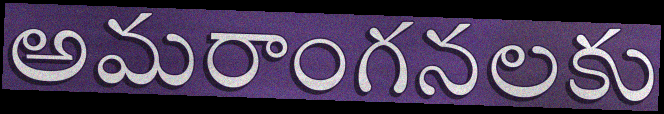
అమరాంగనలకు